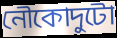
নৌকোদুটো